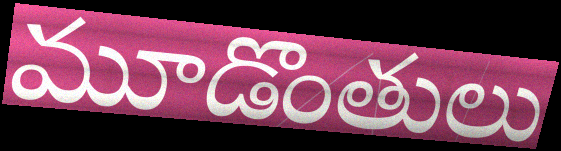
మూడొంతులు